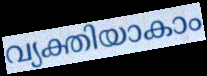
വ്യക്തിയാകാം